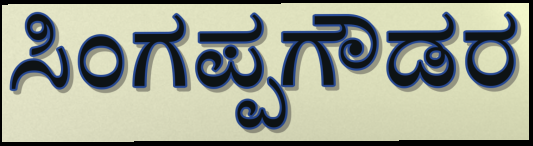
ಸಿಂಗಪ್ಪಗೌಡರ